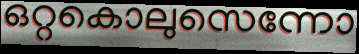
ഒറ്റകൊലുസെന്നോ